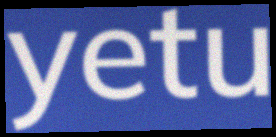
yetu